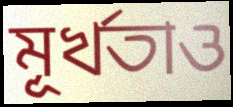
মূর্খতাও